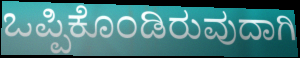
ಒಪ್ಪಿಕೊಂಡಿರುವುದಾಗಿ